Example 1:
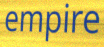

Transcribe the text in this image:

empire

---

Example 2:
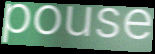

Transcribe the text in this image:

pouse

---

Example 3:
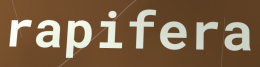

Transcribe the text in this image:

rapifera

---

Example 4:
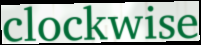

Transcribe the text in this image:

clockwise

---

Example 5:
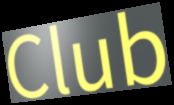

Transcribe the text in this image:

Club